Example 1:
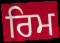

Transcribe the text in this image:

ਰਿਮ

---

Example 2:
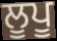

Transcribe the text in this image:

ਲੂਪੂ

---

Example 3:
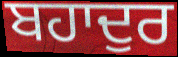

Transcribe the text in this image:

ਬਹਾਦੁਰ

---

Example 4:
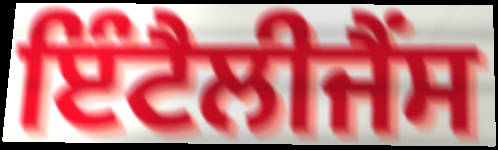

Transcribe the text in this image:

ਇੰਟੈਲੀਜੈਂਸ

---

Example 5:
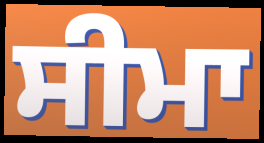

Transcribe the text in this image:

ਸੀਮਾ